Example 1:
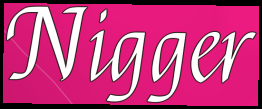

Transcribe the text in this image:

Nigger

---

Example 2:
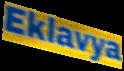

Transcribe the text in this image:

Eklavya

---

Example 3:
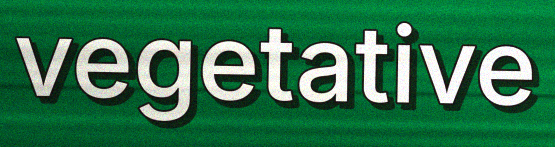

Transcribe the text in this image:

vegetative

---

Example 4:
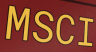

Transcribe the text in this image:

MSCI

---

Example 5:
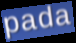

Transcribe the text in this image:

pada